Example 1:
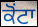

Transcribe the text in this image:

ਕੋਂਟਾ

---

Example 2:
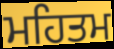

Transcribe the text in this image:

ਮਹਿਤਮ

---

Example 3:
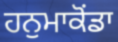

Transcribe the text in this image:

ਹਨੁਮਾਕੋਂਡਾ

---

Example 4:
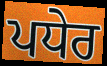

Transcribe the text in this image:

ਪਧੇਰ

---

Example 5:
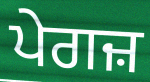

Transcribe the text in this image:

ਪੇਗਜ਼